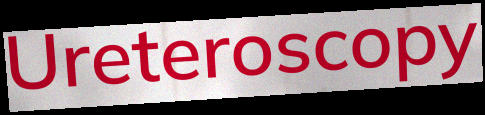
Ureteroscopy